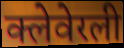
क्लेवेरली